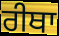
ਰੀਥਾ